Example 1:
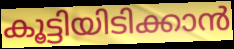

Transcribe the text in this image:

കൂട്ടിയിടിക്കാൻ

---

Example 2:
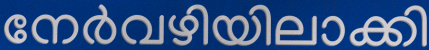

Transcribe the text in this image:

നേർവഴിയിലാക്കി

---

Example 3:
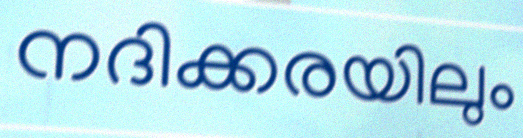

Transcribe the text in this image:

നദിക്കരയിലും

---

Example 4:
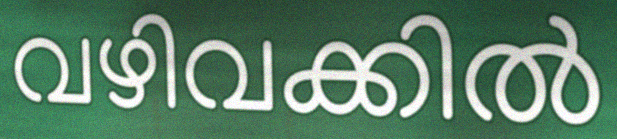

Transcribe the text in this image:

വഴിവക്കിൽ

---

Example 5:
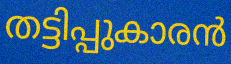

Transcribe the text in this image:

തട്ടിപ്പുകാരൻ